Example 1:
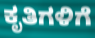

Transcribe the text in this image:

ಕೃತಿಗಳಿಗೆ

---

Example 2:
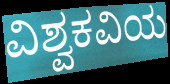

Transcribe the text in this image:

ವಿಶ್ವಕವಿಯ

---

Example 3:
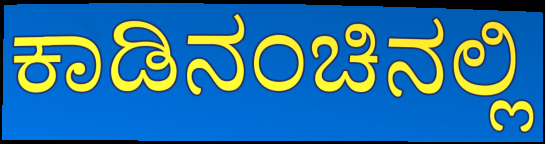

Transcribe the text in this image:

ಕಾಡಿನಂಚಿನಲ್ಲಿ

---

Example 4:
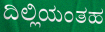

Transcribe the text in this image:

ದಿಲ್ಲಿಯಂತಹ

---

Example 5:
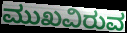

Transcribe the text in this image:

ಮುಖವಿರುವ